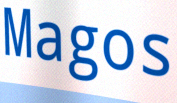
Magos